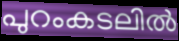
പുറംകടലിൽ